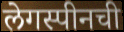
लेगस्पीनची